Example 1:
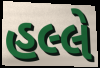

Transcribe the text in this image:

હલ્લે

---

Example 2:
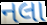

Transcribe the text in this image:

નલા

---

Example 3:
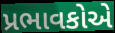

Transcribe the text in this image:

પ્રભાવકોએ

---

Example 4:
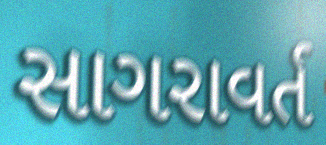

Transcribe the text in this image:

સાગરાવર્ત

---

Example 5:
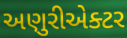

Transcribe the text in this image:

અણુરીએક્ટર